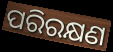
ପରିରକ୍ଷଣ